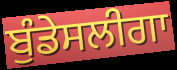
ਬੁੰਡੇਸਲੀਗਾ